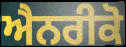
ਐਨਰੀਕੋ